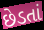
છેડતાં